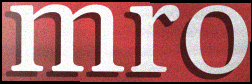
mro